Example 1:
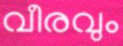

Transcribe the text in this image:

വീരവും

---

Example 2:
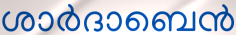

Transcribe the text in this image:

ശാർദാബെൻ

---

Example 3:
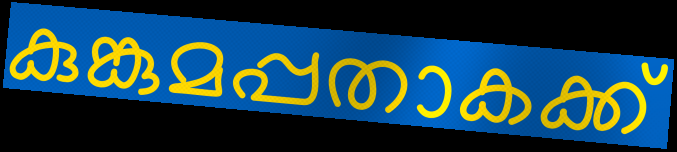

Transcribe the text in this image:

കുങ്കുമപ്പതാകക്ക്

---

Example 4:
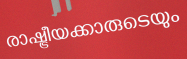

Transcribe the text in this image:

രാഷ്ട്രീയക്കാരുടെയും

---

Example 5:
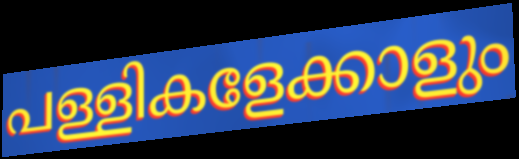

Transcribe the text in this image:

പള്ളികളേക്കാളും